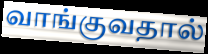
வாங்குவதால்